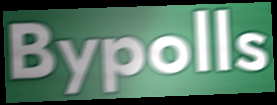
Bypolls